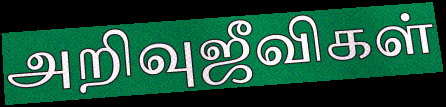
அறிவுஜீவிகள்